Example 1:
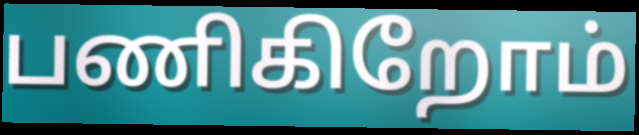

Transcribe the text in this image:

பணிகிறோம்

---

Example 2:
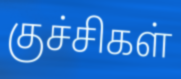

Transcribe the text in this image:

குச்சிகள்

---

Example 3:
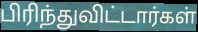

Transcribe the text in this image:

பிரிந்துவிட்டார்கள்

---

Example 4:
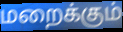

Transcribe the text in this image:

மறைக்கும்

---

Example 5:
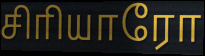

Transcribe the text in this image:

சிரியாரோ